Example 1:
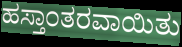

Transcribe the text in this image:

ಹಸ್ತಾಂತರವಾಯಿತು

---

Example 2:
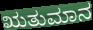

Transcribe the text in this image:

ಋತುಮಾನ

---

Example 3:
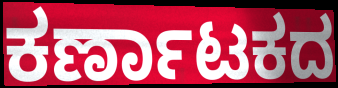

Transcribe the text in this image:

ಕರ್ಣಾಟಕದ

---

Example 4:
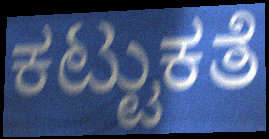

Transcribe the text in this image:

ಕಟ್ಟುಕತೆ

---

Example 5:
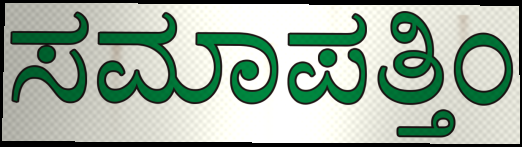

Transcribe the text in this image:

ಸಮಾಪತ್ತಿಂ